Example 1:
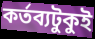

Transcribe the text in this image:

কর্তব্যটুকুই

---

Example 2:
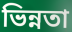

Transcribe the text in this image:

ভিন্নতা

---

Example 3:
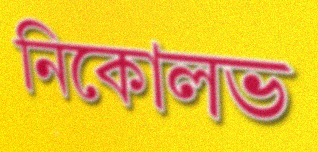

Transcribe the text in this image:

নিকোলভ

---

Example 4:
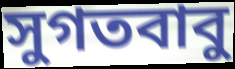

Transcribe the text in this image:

সুগতবাবু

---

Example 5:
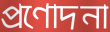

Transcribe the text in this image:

প্রণোদনা